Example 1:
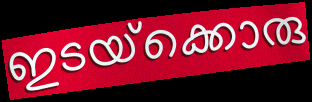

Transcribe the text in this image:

ഇടയ്‌ക്കൊരു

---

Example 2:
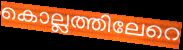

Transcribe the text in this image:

കൊല്ലത്തിലേറെ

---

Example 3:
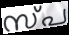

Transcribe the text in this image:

സ്പ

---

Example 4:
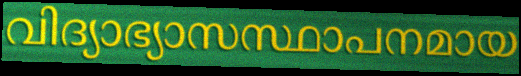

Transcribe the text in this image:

വിദ്യാഭ്യാസസ്ഥാപനമായ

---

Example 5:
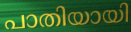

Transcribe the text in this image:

പാതിയായി